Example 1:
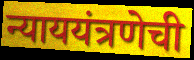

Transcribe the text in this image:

न्याययंत्रणेची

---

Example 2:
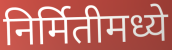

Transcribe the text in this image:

निर्मितीमध्ये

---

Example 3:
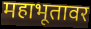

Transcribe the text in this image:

महाभूतावर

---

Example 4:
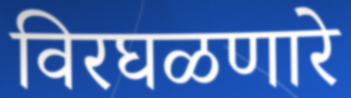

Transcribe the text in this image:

विरघळणारे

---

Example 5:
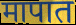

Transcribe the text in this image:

मापात